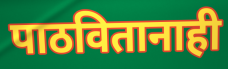
पाठवितानाही